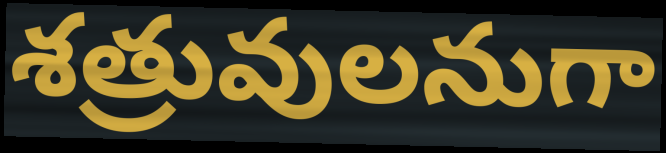
శత్రువులనుగా